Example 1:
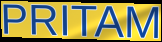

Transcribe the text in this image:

PRITAM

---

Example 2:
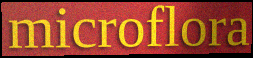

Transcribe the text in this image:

microflora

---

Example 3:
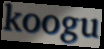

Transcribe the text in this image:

koogu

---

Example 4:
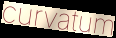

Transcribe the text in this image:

curvatum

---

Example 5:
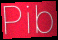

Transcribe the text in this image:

Pib